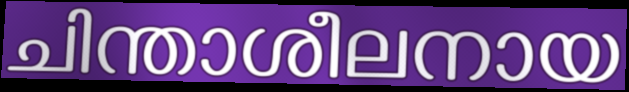
ചിന്താശീലനായ